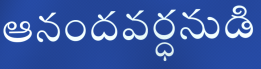
ఆనందవర్ధనుడి